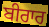
ਬੀਰਾਰ